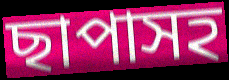
ছাপাসহ